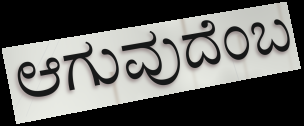
ಆಗುವುದೆಂಬ